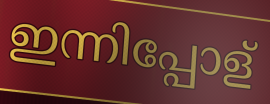
ഇന്നിപ്പോള്